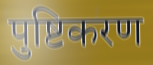
पुष्टिकरण